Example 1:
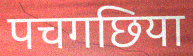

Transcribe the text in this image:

पचगछिया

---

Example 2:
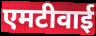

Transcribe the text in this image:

एमटीवाई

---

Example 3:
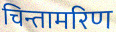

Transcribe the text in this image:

चिन्तामरिण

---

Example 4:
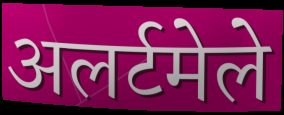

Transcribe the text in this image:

अलर्टमेले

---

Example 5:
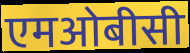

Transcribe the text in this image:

एमओबीसी